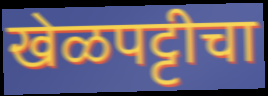
खेळपट्टीचा